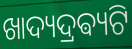
ଖାଦ୍ୟଦ୍ରଵ୍ୟଟି